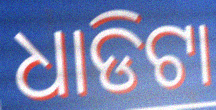
ଧାଡିଟା